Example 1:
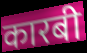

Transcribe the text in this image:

कारबी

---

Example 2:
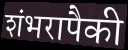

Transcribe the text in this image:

शंभरापैकी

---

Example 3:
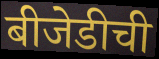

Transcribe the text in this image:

बीजेडीची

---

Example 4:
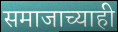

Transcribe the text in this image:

समाजाच्याही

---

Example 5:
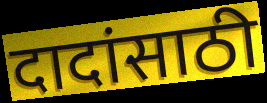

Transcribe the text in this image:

दादांसाठी